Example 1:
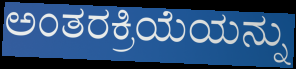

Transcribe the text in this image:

ಅಂತರಕ್ರಿಯೆಯನ್ನು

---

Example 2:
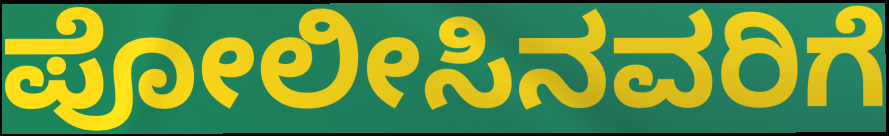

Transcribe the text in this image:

ಪೋಲೀಸಿನವರಿಗೆ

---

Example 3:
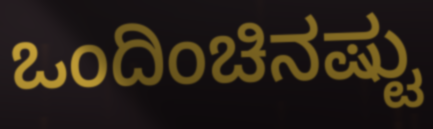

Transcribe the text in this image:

ಒಂದಿಂಚಿನಷ್ಟು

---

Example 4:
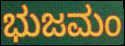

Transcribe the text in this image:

ಭುಜಮಂ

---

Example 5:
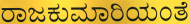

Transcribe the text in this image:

ರಾಜಕುಮಾರಿಯಂತೆ